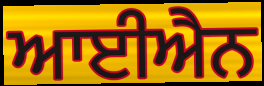
ਆਈਐਨ